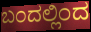
ಬಂದಲ್ಲಿಂದ